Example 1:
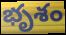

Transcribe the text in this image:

భృశం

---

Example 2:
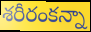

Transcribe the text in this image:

శరీరంకన్నా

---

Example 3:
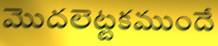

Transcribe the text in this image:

మొదలెట్టకముందే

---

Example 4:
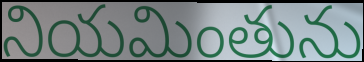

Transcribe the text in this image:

నియమింతును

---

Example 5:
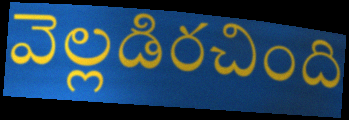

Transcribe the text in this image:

వెల్లడిరచింది